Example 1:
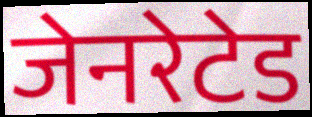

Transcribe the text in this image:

जेनरेटेड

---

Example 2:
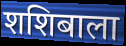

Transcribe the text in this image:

शशिबाला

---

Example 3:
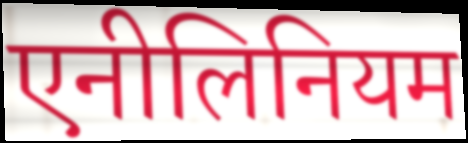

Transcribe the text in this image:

एनीलिनियम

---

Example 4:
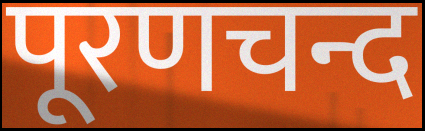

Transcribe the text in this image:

पूरणचन्द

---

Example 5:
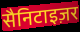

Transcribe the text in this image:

सैनिटाइज़र